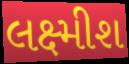
લક્ષ્મીશ